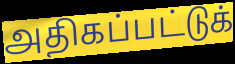
அதிகப்பட்டுக்